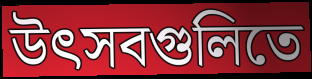
উৎসবগুলিতে